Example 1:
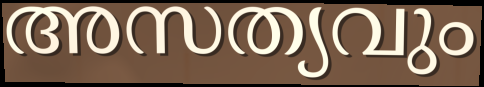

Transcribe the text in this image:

അസത്യവും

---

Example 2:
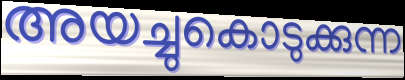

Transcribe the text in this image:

അയച്ചുകൊടുക്കുന്ന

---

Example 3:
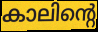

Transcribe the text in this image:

കാലിന്റെ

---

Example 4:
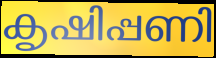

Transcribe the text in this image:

കൃഷിപ്പണി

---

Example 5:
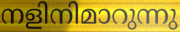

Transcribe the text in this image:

നളിനിമാറുന്നു